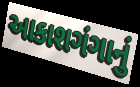
આકાશગંગાનું